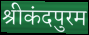
श्रीकंदपुरम